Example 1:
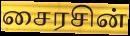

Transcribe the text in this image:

சைரசின்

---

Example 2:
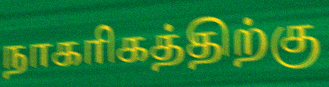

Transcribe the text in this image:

நாகரிகத்திற்கு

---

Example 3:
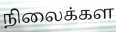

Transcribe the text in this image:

நிலைக்கள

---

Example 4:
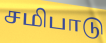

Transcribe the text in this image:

சமிபாடு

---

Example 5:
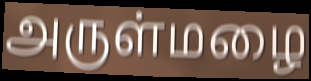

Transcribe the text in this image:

அருள்மழை